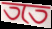
ততে